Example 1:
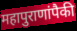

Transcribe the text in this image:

महापुराणांपैकी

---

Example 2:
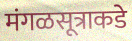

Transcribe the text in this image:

मंगळसूत्राकडे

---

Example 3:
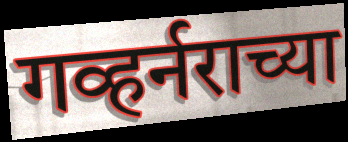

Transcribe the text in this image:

गव्हर्नराच्या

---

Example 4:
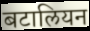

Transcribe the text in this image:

बटालियन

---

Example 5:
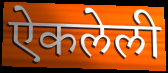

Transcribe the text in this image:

ऐकलेली